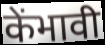
केंभावी